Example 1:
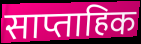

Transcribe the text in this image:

साप्‍ताहिक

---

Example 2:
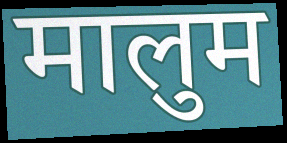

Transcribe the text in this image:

मालुम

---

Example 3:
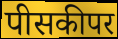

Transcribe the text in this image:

पीसकीपर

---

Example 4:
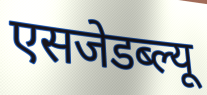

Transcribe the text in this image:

एसजेडब्ल्यू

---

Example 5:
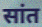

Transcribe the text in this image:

सांत